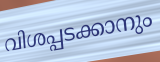
വിശപ്പടക്കാനും